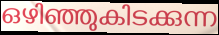
ഒഴിഞ്ഞുകിടക്കുന്ന